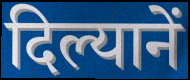
दिल्यानें